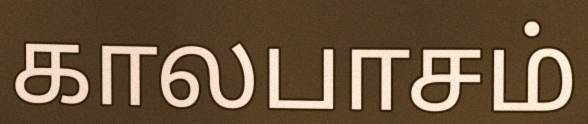
காலபாசம்